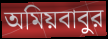
অমিয়বাবুর